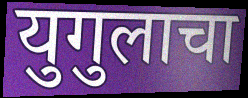
युगुलाचा